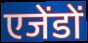
एजेंडों